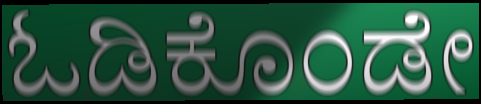
ಓಡಿಕೊಂಡೇ